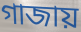
গাজায়